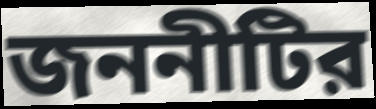
জননীটির